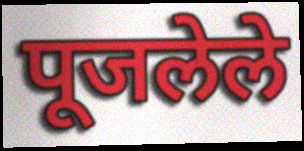
पूजलेले